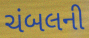
ચંબલની